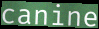
canine